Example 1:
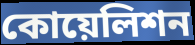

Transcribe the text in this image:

কোয়েলিশন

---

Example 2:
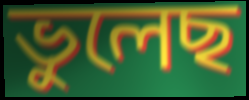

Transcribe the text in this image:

ভুলেছ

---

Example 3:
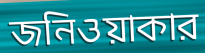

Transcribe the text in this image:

জনিওয়াকার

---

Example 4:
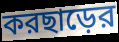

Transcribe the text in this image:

করছাড়ের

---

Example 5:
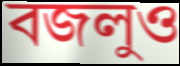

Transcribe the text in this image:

বজলুও